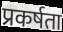
प्रकर्षता